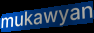
mukawyan